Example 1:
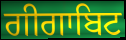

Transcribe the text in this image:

ਗੀਗਾਬਿਟ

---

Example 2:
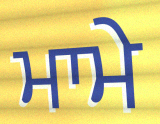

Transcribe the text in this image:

ਮਾਮੇ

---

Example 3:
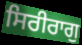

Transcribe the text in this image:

ਸਿਰੀਰਾਗੁ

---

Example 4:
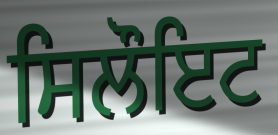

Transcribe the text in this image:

ਸਿਲੌਇਟ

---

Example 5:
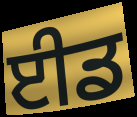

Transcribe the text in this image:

ਈਡ